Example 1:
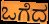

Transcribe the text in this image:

ಒಗೆದ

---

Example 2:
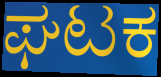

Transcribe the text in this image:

ಘಟಕ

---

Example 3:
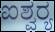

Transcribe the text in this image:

ಐಶ್ವರ‍್ಯ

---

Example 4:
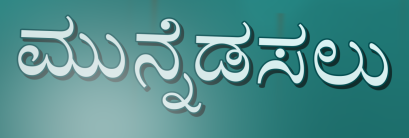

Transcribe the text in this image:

ಮುನ್ನೆಡಸಲು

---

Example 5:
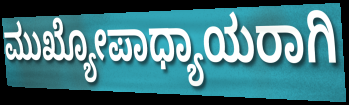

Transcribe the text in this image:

ಮುಖ್ಯೋಪಾಧ್ಯಾಯರಾಗಿ